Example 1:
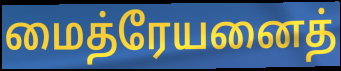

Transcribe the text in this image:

மைத்ரேயனைத்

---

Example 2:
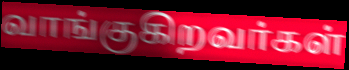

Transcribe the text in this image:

வாங்குகிறவர்கள்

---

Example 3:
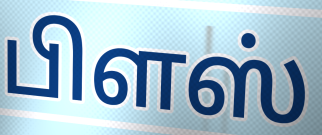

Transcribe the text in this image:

பிளஸ்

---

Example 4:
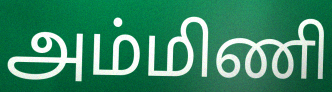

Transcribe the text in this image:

அம்மிணி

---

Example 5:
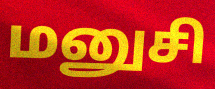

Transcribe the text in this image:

மனுசி